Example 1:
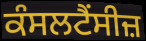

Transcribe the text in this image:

ਕੰਸਲਟੈਂਸੀਜ਼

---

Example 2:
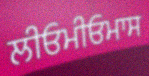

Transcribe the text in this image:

ਲੀਓਮੀਓਮਾਸ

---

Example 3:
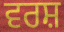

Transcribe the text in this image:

ਵਰਸ਼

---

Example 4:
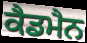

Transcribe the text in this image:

ਕੈਡਮੈਨ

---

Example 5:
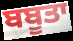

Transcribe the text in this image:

ਬਬੂਤਾ